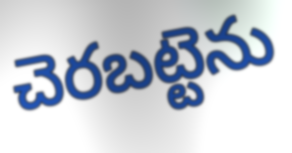
చెరబట్టెను